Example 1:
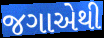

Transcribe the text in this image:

જગાએથી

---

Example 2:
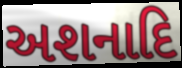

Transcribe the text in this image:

અશનાદિ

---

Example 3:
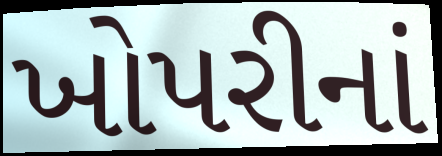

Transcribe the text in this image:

ખોપરીનાં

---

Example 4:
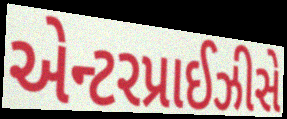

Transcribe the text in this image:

એન્ટરપ્રાઈઝીસે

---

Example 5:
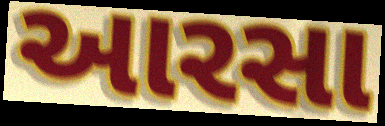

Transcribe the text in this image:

આરસા